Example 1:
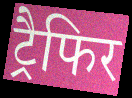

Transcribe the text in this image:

ट्रैफिर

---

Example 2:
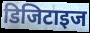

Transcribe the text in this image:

डिजिटाइज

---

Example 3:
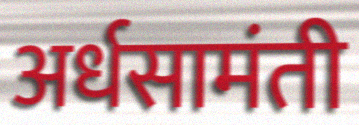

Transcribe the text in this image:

अर्धसामंती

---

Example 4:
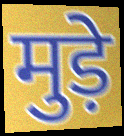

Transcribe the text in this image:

मुड़े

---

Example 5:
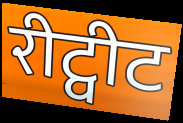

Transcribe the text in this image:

रीट्वीट